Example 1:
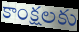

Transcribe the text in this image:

కాంక్షలకు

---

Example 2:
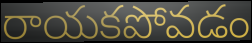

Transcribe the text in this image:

రాయకపోవడం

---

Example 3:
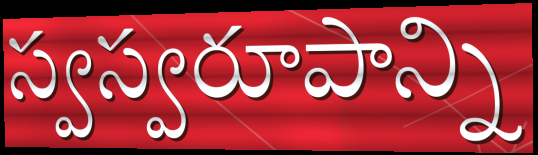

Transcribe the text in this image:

స్వస్వరూపాన్ని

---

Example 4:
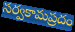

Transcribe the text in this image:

సర్వకామప్రదం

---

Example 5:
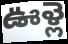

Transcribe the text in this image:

ఊళ్లె